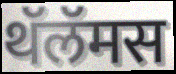
थॅलॅमस